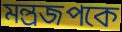
মন্ত্রজপকে